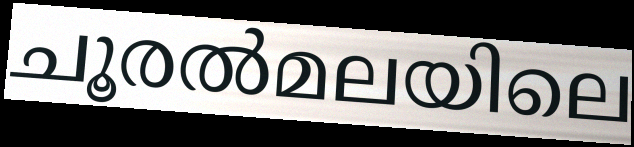
ചൂരൽമലയിലെ